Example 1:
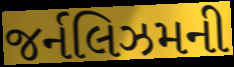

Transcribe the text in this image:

જર્નલિઝમની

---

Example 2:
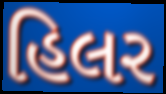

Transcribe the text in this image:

હિલર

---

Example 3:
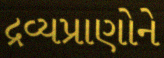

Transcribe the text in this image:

દ્રવ્યપ્રાણોને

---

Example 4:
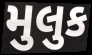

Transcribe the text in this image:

મુલુક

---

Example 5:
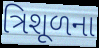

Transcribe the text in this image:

ત્રિશૂળના